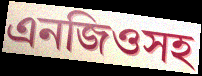
এনজিওসহ